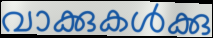
വാക്കുകൾക്കു